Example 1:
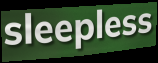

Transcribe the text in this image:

sleepless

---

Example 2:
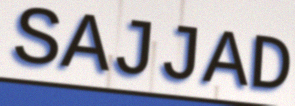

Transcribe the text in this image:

SAJJAD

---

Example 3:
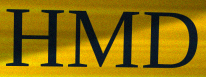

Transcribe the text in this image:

HMD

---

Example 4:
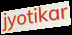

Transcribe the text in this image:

jyotikar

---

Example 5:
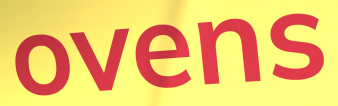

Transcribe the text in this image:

ovens